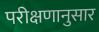
परीक्षणानुसार